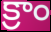
క్రాం